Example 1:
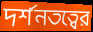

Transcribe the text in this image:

দর্শনতত্বের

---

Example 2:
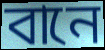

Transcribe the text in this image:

বানে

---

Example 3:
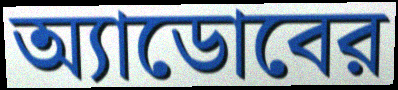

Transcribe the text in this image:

অ্যাডোবের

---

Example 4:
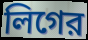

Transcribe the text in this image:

লিগের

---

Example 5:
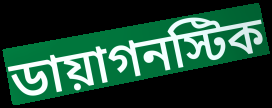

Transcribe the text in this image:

ডায়াগনস্টিক